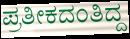
ಪ್ರತೀಕದಂತಿದ್ದ